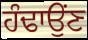
ਹੰਢਾਉਂਣ